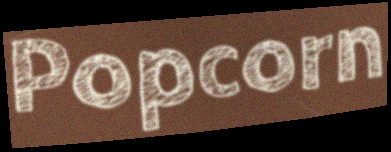
Popcorn